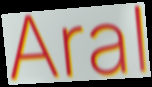
Aral